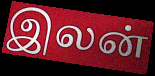
இலன்